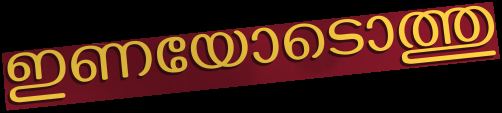
ഇണയോടൊത്തു